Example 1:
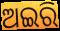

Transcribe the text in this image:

ଅଇରି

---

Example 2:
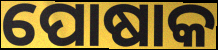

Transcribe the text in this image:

ପୋଷାକ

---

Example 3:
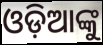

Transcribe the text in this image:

ଓଡ଼ିଆଙ୍କୁ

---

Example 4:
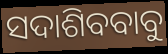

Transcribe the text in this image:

ସଦାଶିବବାବୁ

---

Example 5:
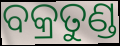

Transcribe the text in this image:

ବକ୍ରତୁଣ୍ଡ